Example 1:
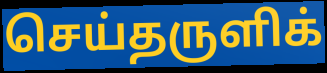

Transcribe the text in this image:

செய்தருளிக்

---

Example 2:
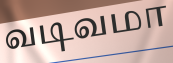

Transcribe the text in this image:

வடிவமா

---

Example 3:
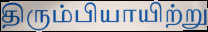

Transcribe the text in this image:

திரும்பியாயிற்று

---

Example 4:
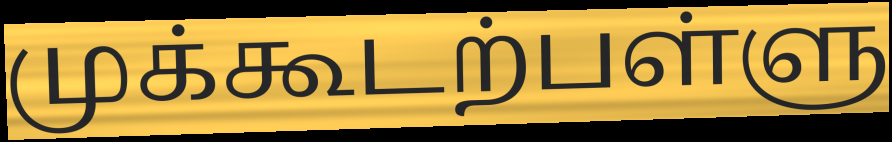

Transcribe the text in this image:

முக்கூடற்பள்ளு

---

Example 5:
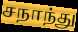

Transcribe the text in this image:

சநாந்து